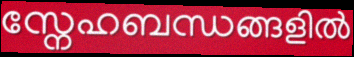
സ്നേഹബന്ധങ്ങളിൽ